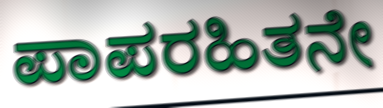
ಪಾಪರಹಿತನೇ